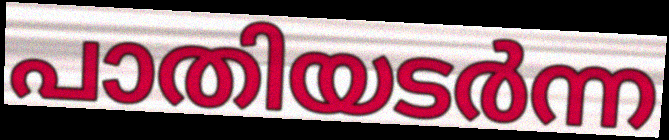
പാതിയടർന്ന